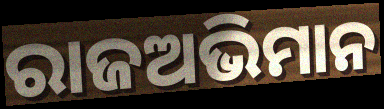
ରାଜଅଭିମାନ